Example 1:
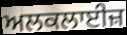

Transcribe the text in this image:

ਅਲਕਲਾਈਜ਼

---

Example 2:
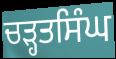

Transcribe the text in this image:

ਚੜ੍ਹਤਸਿੰਘ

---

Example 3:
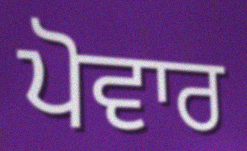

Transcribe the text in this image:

ਪੋਵਾਰ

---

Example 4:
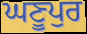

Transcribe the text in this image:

ਘਣੂਪੁਰ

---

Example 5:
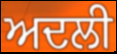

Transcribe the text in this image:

ਅਦਲੀ